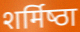
शर्मिष्‍ठा